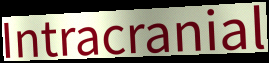
Intracranial